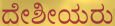
ದೇಶೀಯರು